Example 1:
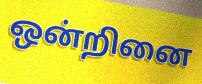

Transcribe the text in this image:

ஒன்றினை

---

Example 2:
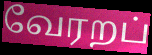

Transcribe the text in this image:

வேரறப்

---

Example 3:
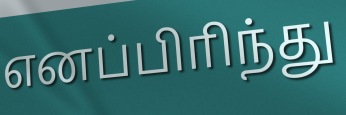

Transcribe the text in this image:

எனப்பிரிந்து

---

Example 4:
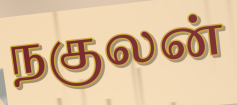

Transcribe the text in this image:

நகுலன்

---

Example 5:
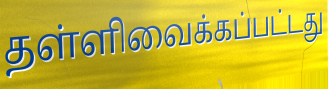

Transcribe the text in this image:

தள்ளிவைக்கப்பட்டது